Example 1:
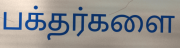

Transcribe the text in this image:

பக்தர்களை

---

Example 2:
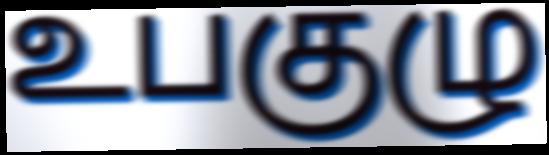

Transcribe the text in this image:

உபகுழு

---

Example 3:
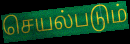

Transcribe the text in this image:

செயல்படும்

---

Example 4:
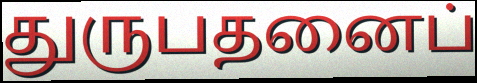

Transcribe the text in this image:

துருபதனைப்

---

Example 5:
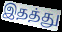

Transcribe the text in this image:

இதத்து